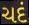
ચદં